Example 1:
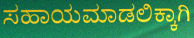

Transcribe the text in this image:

ಸಹಾಯಮಾಡಲಿಕ್ಕಾಗಿ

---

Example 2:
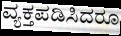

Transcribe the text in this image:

ವ್ಯಕ್ತಪಡಿಸಿದರೂ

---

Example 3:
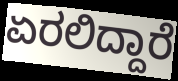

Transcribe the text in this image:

ಏರಲಿದ್ದಾರೆ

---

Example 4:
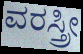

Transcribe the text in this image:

ವರಸ್ತ್ರೀ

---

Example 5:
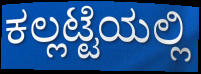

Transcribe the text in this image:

ಕಲ್ಲಟ್ಟೆಯಲ್ಲಿ